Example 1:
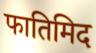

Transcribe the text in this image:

फातिमिद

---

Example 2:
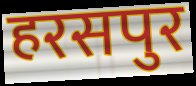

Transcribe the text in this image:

हरसपुर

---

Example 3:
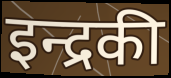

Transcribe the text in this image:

इन्द्रकी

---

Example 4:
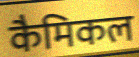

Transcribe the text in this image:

कैमिकल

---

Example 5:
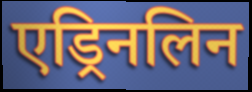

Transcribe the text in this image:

एड्रिनलिन